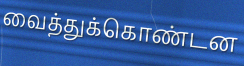
வைத்துக்கொண்டன